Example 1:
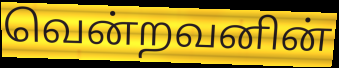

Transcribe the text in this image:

வென்றவனின்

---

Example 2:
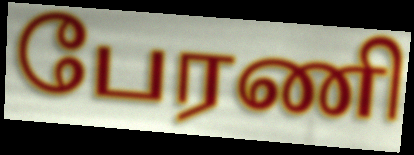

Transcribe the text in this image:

பேரணி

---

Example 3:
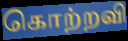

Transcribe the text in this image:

கொற்றவி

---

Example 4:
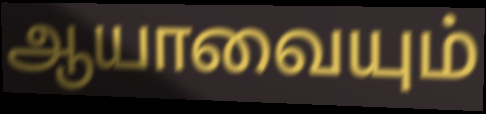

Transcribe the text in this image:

ஆயாவையும்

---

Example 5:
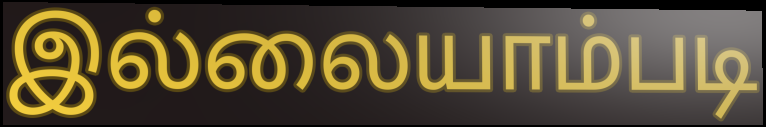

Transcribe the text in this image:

இல்லையாம்படி